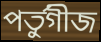
পৰ্তুগীজ